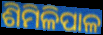
ଶିମିଳିପାଳ